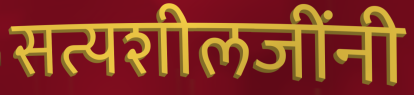
सत्यशीलजींनी